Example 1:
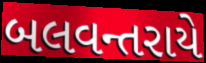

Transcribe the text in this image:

બલવન્તરાયે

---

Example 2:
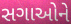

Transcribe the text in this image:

સગાઓને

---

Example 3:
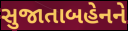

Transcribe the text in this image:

સુજાતાબહેનને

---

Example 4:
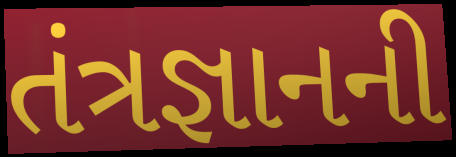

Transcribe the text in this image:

તંત્રજ્ઞાનની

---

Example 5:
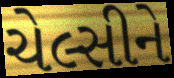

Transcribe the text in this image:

ચેલ્સીને